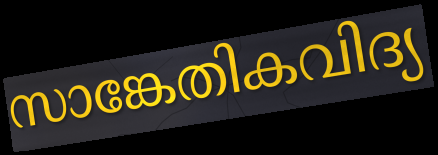
സാങ്കേതികവിദ്യ